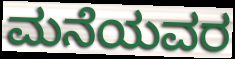
ಮನೆಯವರ